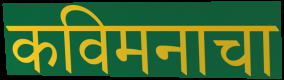
कविमनाचा